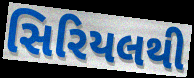
સિરિયલથી